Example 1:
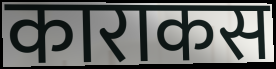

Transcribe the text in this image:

काराकस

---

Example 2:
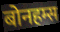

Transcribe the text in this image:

बोनहम्स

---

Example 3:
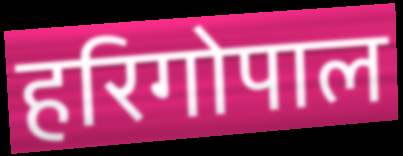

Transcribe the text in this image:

हरिगोपाल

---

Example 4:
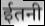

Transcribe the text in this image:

ईतनी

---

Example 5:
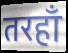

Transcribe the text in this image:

तरहाँ